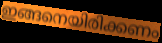
ഇങ്ങനെയിരിക്കണം